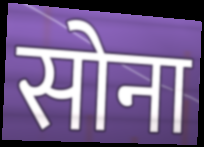
सोना